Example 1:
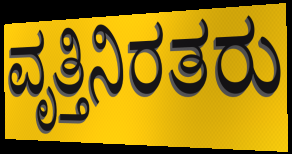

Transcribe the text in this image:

ವೃತ್ತಿನಿರತರು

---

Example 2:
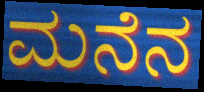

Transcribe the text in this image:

ಮನೆನ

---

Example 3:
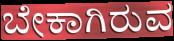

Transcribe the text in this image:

ಬೇಕಾಗಿರುವ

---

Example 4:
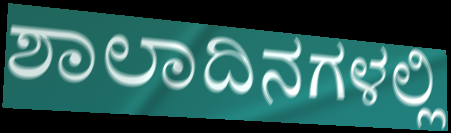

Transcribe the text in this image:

ಶಾಲಾದಿನಗಳಲ್ಲಿ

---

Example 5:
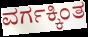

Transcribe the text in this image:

ವರ್ಗಕ್ಕಿಂತ